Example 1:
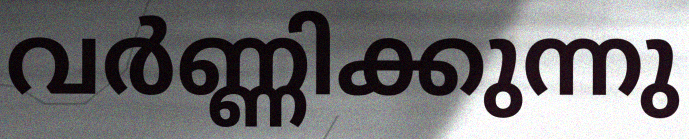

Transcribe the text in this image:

വർണ്ണിക്കുന്നു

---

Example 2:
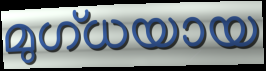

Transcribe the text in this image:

മുഗ്ധയായ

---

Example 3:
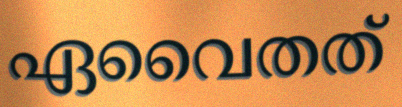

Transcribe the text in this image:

ഏവൈതത്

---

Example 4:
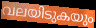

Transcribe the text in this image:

വലയിടുകയും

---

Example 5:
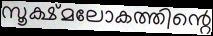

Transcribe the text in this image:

സൂക്ഷ്മലോകത്തിന്റെ